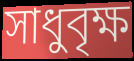
সাধুবৃক্ষ